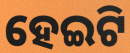
ହେଇଟି